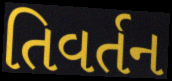
તિવર્તન